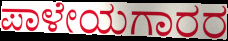
ಪಾಳೇಯಗಾರರ